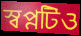
স্বপ্নটিও